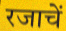
रजाचें